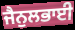
ਜੈਨੁਲਭਾਈ